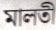
মালতী